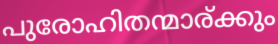
പുരോഹിതന്മാര്ക്കും